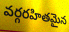
వర్గరహితమైన